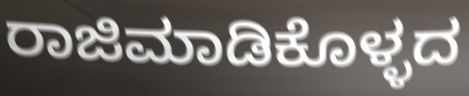
ರಾಜಿಮಾಡಿಕೊಳ್ಳದ